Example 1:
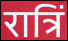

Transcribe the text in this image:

रात्रिं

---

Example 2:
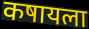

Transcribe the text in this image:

कषायला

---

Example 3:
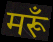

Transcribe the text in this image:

मरूँ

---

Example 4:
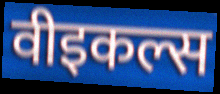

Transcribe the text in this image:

वीइकल्‍स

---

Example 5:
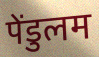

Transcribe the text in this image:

पेंडुलम